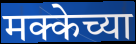
मक्केच्या